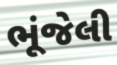
ભૂંજેલી